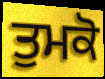
ਤੁਮਕੋ